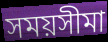
সময়সীমা